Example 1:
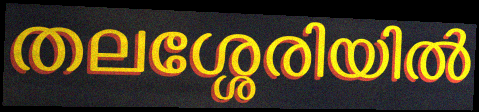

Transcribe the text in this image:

തലശ്ശേരിയിൽ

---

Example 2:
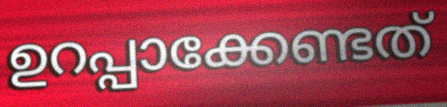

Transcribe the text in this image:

ഉറപ്പാക്കേണ്ടത്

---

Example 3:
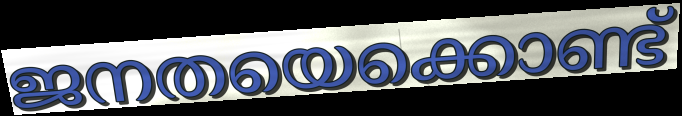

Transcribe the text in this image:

ജനതയെക്കൊണ്ട്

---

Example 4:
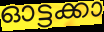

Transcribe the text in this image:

ഓട്ടക്കാ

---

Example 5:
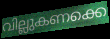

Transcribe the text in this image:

വില്ലുകണക്കെ